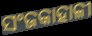
ସଂଜକାହାଳୀ